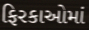
ફિરકાઓમાં